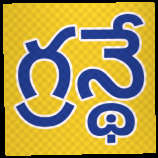
గ్రన్థే